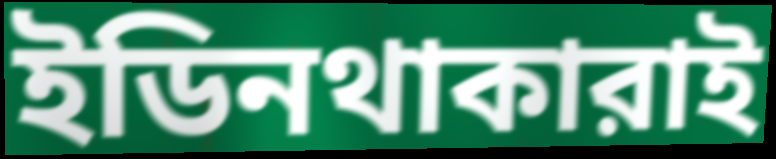
ইডিনথাকারাই